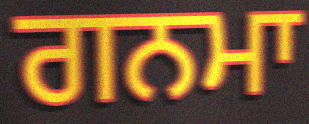
ਗਨਮਾ